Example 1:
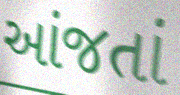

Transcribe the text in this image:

આંજતાં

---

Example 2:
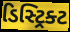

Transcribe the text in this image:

ડિસ્ટ્રિક્ટ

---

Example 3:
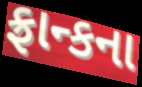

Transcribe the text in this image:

ફ્રાન્કના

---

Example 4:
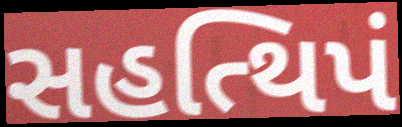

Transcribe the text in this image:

સહત્થિપં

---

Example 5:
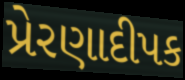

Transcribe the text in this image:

પ્રેરણાદીપક